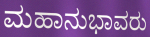
ಮಹಾನುಭಾವರು